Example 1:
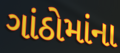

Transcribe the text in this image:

ગાંઠોમાંના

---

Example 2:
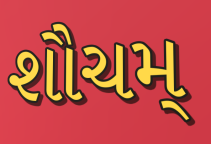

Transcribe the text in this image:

શૌચમ્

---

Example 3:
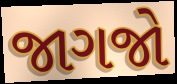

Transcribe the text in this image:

જાગજો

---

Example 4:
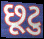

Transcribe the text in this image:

છૂટુ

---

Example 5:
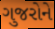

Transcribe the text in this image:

ગુજરોને